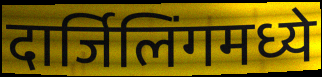
दार्जिलिंगमध्ये